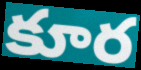
కూర